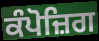
ਕੰਪੋਜ਼ਿਗ